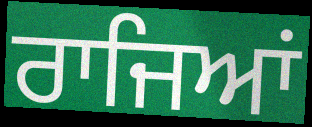
ਰਾਜਿਆਂ